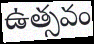
ఉత్సవం